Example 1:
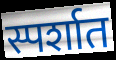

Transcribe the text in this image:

स्पर्शात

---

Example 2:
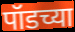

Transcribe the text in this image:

पॉडच्या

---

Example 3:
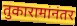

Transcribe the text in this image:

तुकारामांनंतर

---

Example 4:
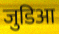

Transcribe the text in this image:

जुडिआ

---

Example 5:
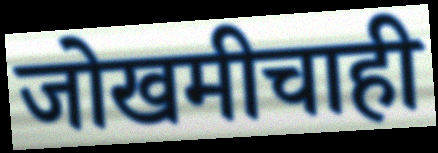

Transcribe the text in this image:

जोखमीचाही